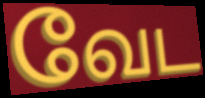
வேட